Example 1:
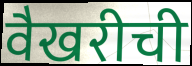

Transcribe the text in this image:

वैखरीची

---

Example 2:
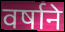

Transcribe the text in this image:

वर्षाने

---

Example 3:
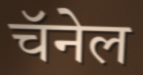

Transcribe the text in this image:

चॅनेल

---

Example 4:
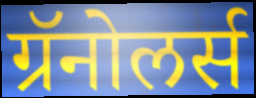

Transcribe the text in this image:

ग्रॅनोलर्स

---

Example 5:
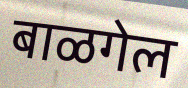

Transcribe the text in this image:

बाळगेल